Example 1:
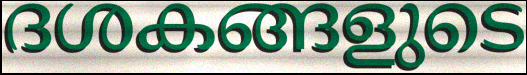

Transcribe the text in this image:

ദശകങ്ങളുടെ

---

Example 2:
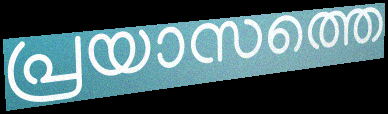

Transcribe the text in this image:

പ്രയാസത്തെ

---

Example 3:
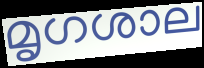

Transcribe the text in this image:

മൃഗശാല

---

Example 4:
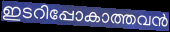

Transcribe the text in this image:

ഇടറിപ്പോകാത്തവൻ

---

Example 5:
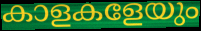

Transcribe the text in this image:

കാളകളേയും